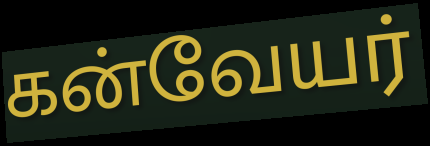
கன்வேயர்